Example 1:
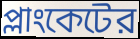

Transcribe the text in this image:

প্লাংকেটের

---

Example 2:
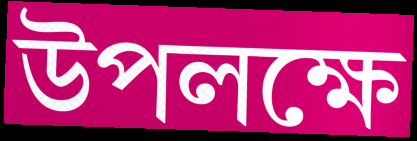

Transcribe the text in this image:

উপলক্ষে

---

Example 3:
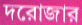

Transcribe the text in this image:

দরোজার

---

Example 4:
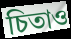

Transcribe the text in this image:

চিতাও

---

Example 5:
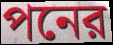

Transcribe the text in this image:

পনের